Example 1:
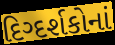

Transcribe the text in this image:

દિગ્દર્શકોનાં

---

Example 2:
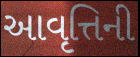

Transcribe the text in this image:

આવૃત્તિની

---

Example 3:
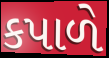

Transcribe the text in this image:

કપાળે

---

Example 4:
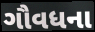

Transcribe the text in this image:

ગૌવધના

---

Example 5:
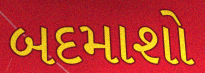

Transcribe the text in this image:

બદમાશો